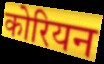
कोरियन